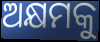
ଅକ୍ଷମକୁ